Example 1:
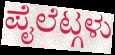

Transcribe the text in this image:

ಪೈಲೆಟ್ಗಳು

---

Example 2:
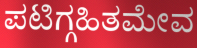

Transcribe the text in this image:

ಪಟಿಗ್ಗಹಿತಮೇವ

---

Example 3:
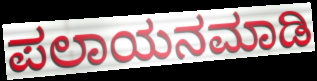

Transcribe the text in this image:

ಪಲಾಯನಮಾಡಿ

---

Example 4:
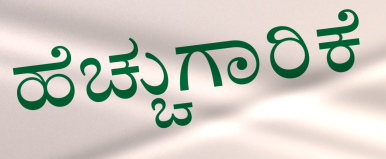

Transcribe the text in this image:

ಹೆಚ್ಚುಗಾರಿಕೆ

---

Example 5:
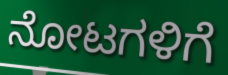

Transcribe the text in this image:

ನೋಟಗಳಿಗೆ